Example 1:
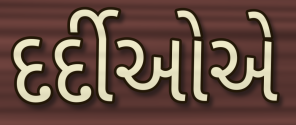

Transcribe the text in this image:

દર્દીઓએ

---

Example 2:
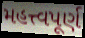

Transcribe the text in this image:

મહત્ત્વપૂર્ણ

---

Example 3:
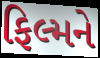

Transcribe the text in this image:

ફિલ્મને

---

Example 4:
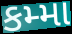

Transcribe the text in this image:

કમ્મા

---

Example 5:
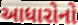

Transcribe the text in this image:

આધારોનો